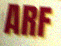
ARF